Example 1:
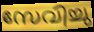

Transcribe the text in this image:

സേവിച്ചു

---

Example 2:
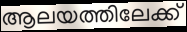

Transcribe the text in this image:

ആലയത്തിലേക്ക്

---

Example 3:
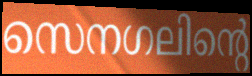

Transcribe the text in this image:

സെനഗലിന്റെ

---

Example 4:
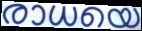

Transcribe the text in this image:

രാധയെ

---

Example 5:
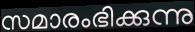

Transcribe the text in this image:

സമാരംഭിക്കുന്നു